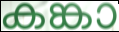
കങ്കാ